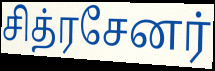
சித்ரசேனர்